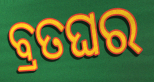
ବ୍ରତଘର